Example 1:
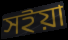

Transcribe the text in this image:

সইয়া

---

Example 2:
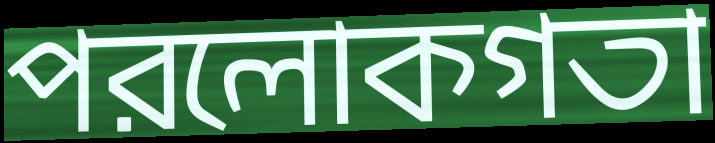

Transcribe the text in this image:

পরলোকগতা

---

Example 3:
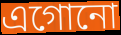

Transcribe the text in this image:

এগোনো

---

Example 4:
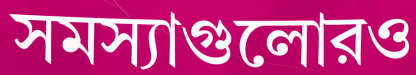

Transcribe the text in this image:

সমস্যাগুলোরও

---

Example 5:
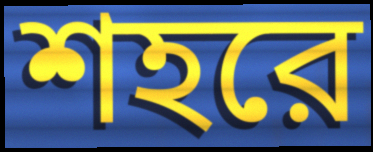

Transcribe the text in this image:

শহরে